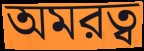
অমরত্ব